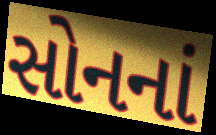
સોનનાં